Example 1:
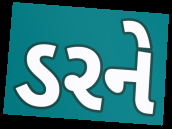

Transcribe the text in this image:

ડરને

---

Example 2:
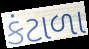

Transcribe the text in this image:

કંટાળા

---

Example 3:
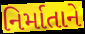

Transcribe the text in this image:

નિર્માતાને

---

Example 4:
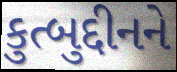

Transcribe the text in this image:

કુત્બુદ્દીનને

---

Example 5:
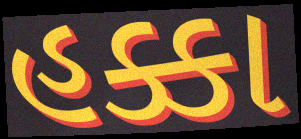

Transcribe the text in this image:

હક્કા